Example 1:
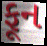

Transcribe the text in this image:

ફૂન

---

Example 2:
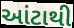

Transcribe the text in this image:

આંટાથી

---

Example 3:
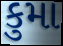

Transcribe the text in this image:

કુમા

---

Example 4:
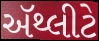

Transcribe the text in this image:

ઍથ્લીટે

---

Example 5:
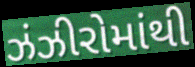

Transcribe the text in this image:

ઝંઝીરોમાંથી